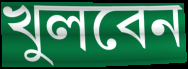
খুলবেন